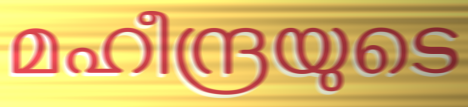
മഹീന്ദ്രയുടെ